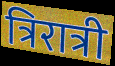
त्रिरात्री